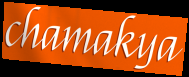
chamakya